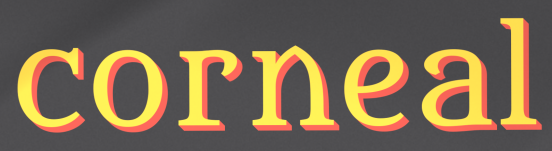
corneal